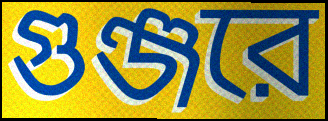
গুঞ্জরে